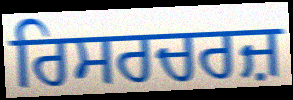
ਰਿਸਰਚਰਜ਼